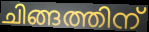
ചിങ്ങത്തിന്